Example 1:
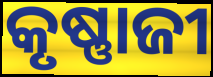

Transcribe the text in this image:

କୃଷ୍ଣାଜୀ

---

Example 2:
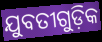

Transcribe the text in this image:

ଯୁବତୀଗୁଡ଼ିକ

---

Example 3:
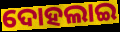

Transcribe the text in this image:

ଦୋହଲାଇ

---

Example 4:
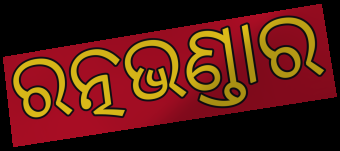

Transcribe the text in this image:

ରତ୍ନଭଣ୍ଡାର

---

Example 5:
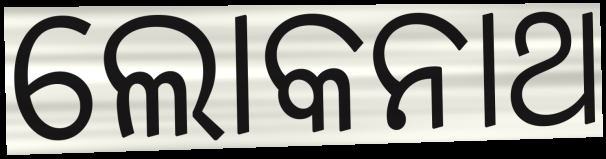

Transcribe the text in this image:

ଲୋକନାଥ